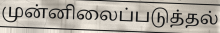
முன்னிலைப்படுத்தல்